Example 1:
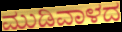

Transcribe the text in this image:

ಮುಡಿವಾಳದ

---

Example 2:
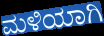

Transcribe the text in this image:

ಮಳಿಯಾಗಿ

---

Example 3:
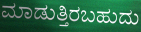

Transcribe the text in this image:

ಮಾಡುತ್ತಿರಬಹುದು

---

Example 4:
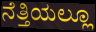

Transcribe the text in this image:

ನೆತ್ತಿಯಲ್ಲೂ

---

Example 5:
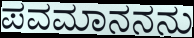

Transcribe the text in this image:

ಪವಮಾನನನು